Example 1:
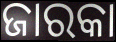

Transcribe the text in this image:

ଜାରକା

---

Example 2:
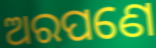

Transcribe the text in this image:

ଅରପଣେ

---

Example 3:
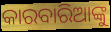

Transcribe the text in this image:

କାରବାରିଆଙ୍କୁ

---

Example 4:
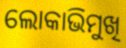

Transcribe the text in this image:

ଲୋକାଭିମୁଖି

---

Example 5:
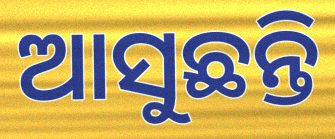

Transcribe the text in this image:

ଆସୁଛନ୍ତି